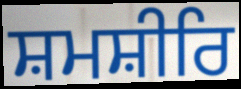
ਸ਼ਮਸ਼ੀਰਿ